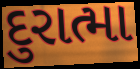
દુરાત્મા